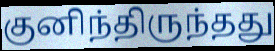
குனிந்திருந்தது